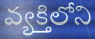
వ్యక్తిలోని